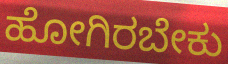
ಹೋಗಿರಬೇಕು